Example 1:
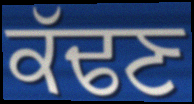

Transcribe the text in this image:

ਕੱਢਣ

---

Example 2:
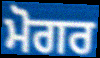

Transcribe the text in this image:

ਮੋਗਰ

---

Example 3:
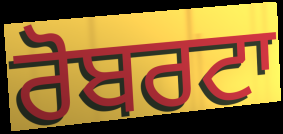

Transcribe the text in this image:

ਰੋਬਰਟਾ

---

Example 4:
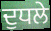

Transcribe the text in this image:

ਦੁਧਲੇ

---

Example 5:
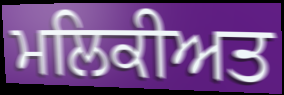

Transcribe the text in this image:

ਮਲਿਕੀਅਤ